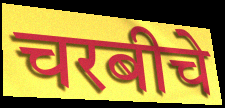
चरबीचे